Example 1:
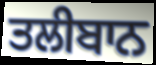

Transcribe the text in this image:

ਤਲੀਬਾਨ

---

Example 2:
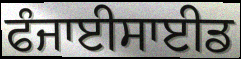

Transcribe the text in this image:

ਫੰਜਾਈਸਾਈਡ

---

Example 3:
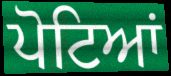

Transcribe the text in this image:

ਪੋਟਿਆਂ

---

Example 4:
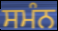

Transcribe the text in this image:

ਸਮੰਨ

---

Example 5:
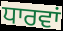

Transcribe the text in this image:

ਧਾਰਵਾਂ